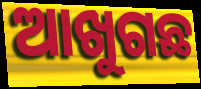
ଆଖୁଗଛ